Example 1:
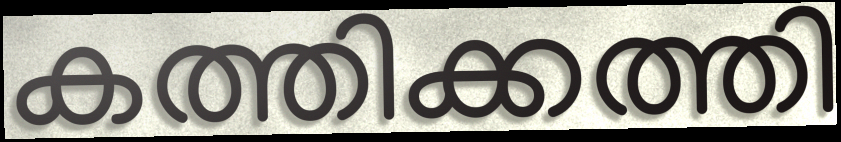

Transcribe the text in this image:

കത്തിക്കത്തി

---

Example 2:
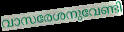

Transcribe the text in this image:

വാസരേശനുവേണ്ടി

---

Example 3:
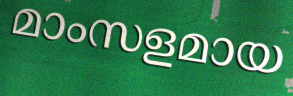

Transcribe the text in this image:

മാംസളമായ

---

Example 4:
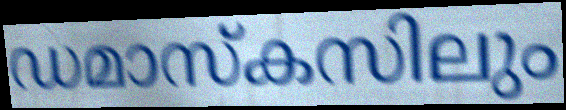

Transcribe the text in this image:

ഡമാസ്കസിലും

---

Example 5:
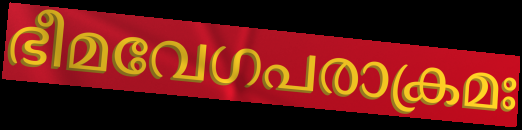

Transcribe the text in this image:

ഭീമവേഗപരാക്രമഃ